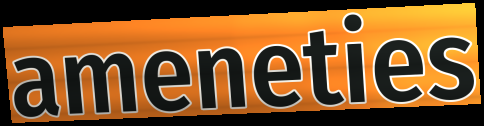
ameneties